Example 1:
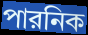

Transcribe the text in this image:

পারনিক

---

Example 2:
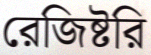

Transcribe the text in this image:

রেজিষ্টরি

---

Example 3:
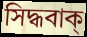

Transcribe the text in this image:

সিদ্ধবাক্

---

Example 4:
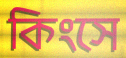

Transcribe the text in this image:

কিংসে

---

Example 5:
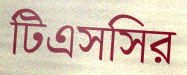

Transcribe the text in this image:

টিএসসির